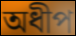
অধীপ